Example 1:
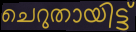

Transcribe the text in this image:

ചെറുതായിട്ട്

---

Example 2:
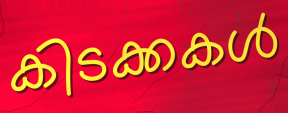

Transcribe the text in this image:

കിടക്കകൾ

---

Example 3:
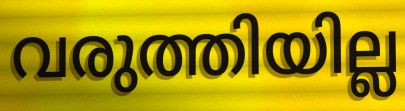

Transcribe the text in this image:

വരുത്തിയില്ല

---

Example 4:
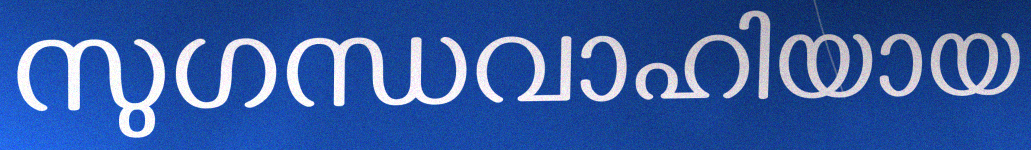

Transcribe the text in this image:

സുഗന്ധവാഹിയായ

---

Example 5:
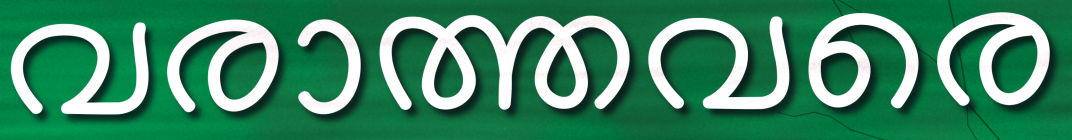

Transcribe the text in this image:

വരാത്തവരെ